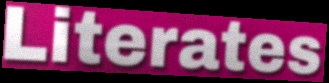
Literates